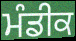
ਮੰਡੀਕ